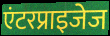
एंटरप्राइजेज